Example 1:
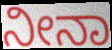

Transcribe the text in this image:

ನೀನಾ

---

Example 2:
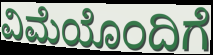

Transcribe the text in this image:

ವಿಮೆಯೊಂದಿಗೆ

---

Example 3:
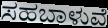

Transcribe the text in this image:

ಸಹಬಾಳುವೆ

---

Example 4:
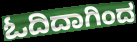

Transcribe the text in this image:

ಓದಿದಾಗಿಂದ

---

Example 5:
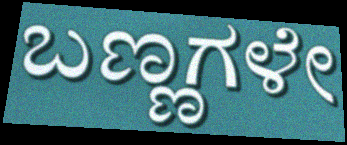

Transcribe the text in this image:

ಬಣ್ಣಗಳೇ